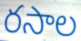
రసాల